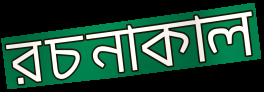
রচনাকাল